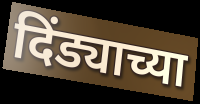
दिंड्याच्या